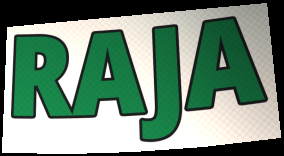
RAJA